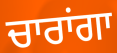
ਚਾਰਾਂਗਾ